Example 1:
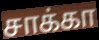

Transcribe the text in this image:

சாக்கா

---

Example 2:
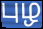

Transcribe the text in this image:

புழ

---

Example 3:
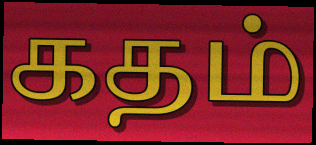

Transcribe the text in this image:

கதம்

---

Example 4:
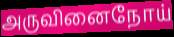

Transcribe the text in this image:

அருவினைநோய்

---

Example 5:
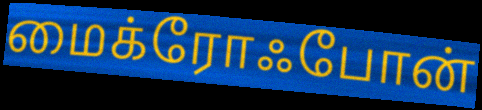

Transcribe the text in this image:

மைக்ரோஃபோன்